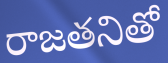
రాజతనితో